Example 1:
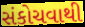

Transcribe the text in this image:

સંકોચવાથી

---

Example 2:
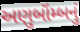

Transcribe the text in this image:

અણુબૉમ્બનું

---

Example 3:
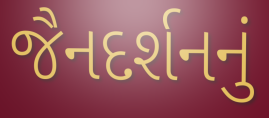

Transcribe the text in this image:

જૈનદર્શનનું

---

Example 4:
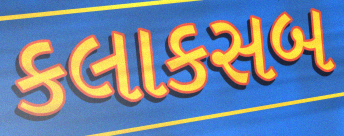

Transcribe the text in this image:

કલાકસબ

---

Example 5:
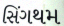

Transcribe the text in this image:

સિંગથમ